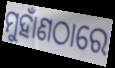
ମୁହାଁଣଠାରେ